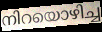
നിറയൊഴിച്ച